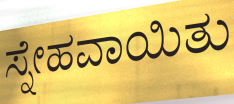
ಸ್ನೇಹವಾಯಿತು